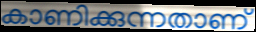
കാണിക്കുന്നതാണ്